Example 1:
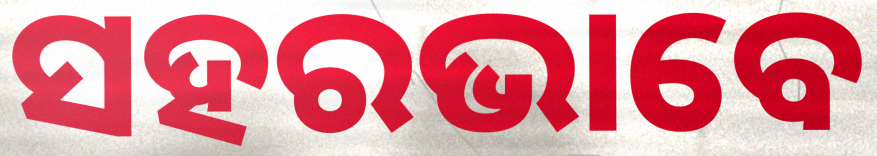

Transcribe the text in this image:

ସହରଭାବେ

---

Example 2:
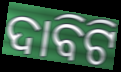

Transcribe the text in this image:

ଦାବିଟି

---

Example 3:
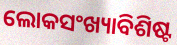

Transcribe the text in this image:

ଲୋକସଂଖ୍ୟାବିଶିଷ୍ଟ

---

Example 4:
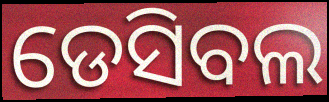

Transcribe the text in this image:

ଡେସିବଲ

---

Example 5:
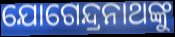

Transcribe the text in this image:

ଯୋଗେନ୍ଦ୍ରନାଥଙ୍କୁ